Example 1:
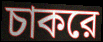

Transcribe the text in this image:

চাকরে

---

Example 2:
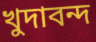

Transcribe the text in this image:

খুদাবন্দ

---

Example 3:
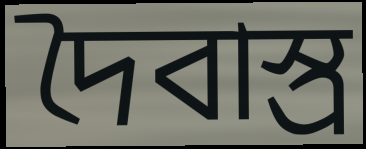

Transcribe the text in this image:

দৈবাস্ত্র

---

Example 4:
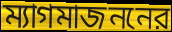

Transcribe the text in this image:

ম্যাগমাজননের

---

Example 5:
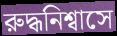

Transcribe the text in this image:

রুদ্ধনিশ্বাসে